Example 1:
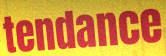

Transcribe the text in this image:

tendance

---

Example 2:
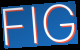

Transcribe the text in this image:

FIG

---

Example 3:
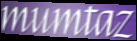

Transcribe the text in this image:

mumtaz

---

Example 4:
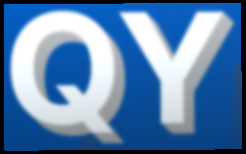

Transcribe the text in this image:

QY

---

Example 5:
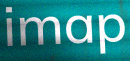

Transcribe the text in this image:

imap